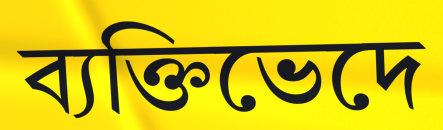
ব্যক্তিভেদে